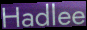
Hadlee